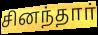
சினந்தார்